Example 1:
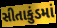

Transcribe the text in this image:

સીતાકુંડમાં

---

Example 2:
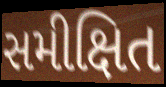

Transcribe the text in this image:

સમીક્ષિત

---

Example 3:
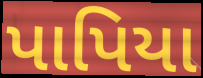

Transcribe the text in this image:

પાપિયા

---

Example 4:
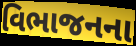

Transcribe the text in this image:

વિભાજનના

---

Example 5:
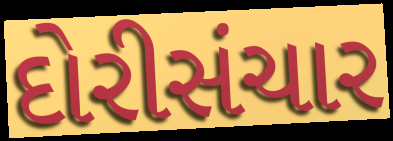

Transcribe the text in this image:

દોરીસંચાર